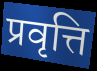
प्रवृत्ति